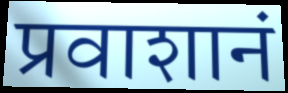
प्रवाशानं